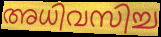
അധിവസിച്ച